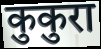
कुकुरा